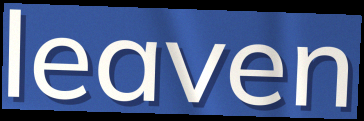
leaven